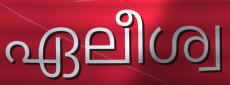
ഏലീശ്വ